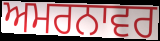
ਅਮਰਨਾਵਰ